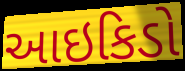
આઇકિડો